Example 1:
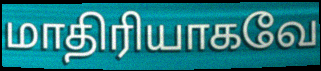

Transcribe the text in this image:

மாதிரியாகவே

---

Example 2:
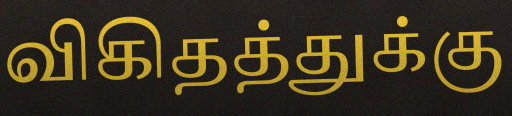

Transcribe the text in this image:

விகிதத்துக்கு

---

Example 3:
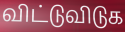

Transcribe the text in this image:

விட்டுவிடுக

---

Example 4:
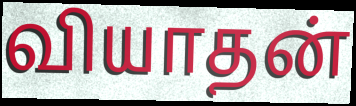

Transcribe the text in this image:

வியாதன்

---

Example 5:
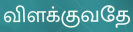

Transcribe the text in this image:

விளக்குவதே